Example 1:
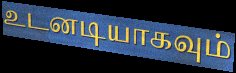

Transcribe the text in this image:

உடனடியாகவும்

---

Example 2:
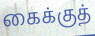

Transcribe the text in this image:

கைக்குத்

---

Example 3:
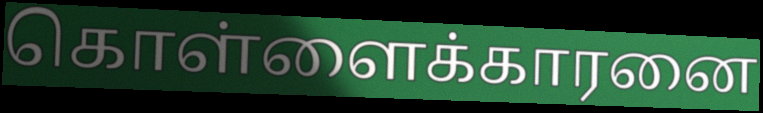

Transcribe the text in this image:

கொள்ளைக்காரனை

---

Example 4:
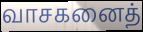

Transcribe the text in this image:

வாசகனைத்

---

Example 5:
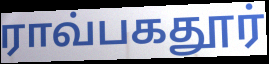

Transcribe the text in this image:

ராவ்பகதூர்